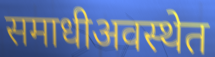
समाधीअवस्थेत